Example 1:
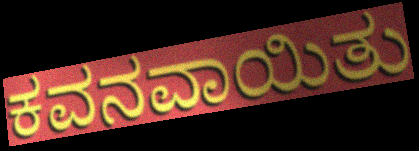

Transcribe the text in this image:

ಕವನವಾಯಿತು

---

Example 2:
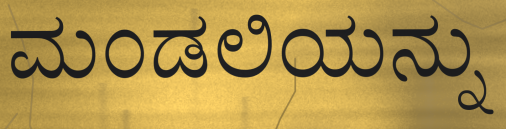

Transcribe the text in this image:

ಮಂಡಲಿಯನ್ನು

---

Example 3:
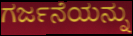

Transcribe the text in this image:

ಗರ್ಜನೆಯನ್ನು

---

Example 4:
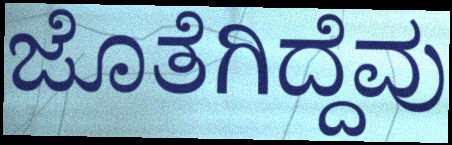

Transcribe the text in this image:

ಜೊತೆಗಿದ್ದೆವು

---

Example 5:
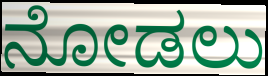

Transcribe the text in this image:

ನೋಡಲು